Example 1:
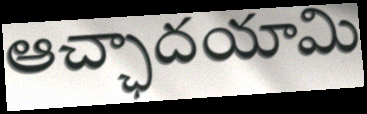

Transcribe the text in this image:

ఆచ్ఛాదయామి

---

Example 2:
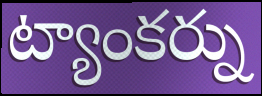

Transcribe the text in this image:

ట్యాంకర్ను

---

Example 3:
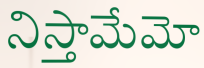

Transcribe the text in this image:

నిస్తామేమో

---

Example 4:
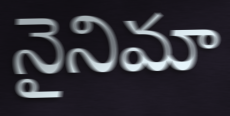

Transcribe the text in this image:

నైనిమా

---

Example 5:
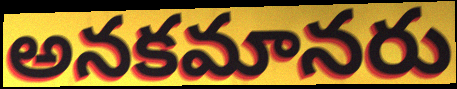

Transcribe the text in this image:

అనకమానరు